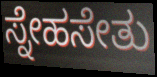
ಸ್ನೇಹಸೇತು